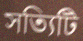
সত্যিটি